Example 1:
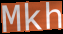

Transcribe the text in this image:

Mkh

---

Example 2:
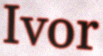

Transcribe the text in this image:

Ivor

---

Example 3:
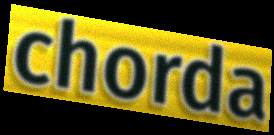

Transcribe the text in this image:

chorda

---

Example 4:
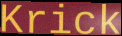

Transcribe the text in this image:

Krick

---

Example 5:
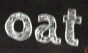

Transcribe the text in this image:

oat